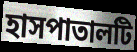
হাসপাতালটি